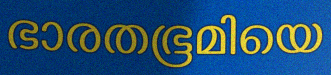
ഭാരതഭൂമിയെ